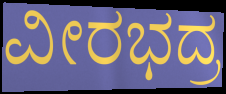
ವೀರಭದ್ರ